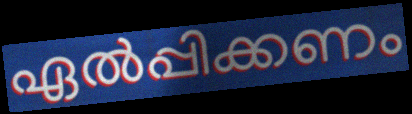
ഏൽപ്പിക്കണം